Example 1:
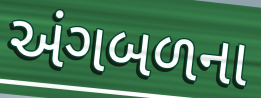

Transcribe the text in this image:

અંગબળના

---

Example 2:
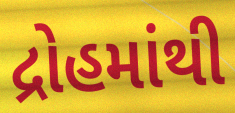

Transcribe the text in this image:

દ્રોહમાંથી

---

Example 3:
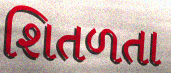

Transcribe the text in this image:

શિતળતા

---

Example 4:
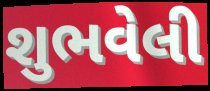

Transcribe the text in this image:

શુભવેલી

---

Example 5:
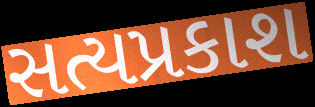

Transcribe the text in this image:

સત્યપ્રકાશ